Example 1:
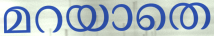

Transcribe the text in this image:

മറയാതെ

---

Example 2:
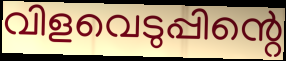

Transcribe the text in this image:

വിളവെടുപ്പിന്റെ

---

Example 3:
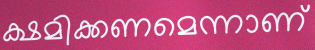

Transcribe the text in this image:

ക്ഷമിക്കണമെന്നാണ്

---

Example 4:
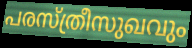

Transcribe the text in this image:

പരസ്ത്രീസുഖവും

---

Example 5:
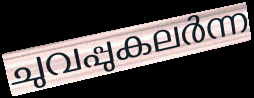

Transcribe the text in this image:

ചുവപ്പുകലർന്ന